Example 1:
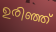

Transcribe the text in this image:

ഉരിഞ്ഞ്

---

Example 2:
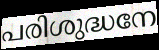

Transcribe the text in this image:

പരിശുദ്ധനേ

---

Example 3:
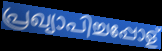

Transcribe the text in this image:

പ്രഖ്യാപിച്ചപ്പോള്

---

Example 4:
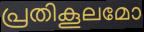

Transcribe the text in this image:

പ്രതികൂലമോ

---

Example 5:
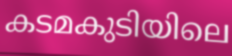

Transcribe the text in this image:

കടമകുടിയിലെ